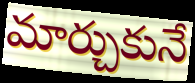
మార్చుకునే